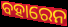
ବହାରେନ